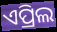
ଏପ୍ରିଲ